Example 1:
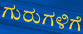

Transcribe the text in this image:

ಗುರುಗಳಿಗೆ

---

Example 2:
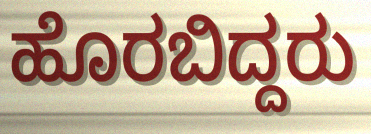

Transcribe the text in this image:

ಹೊರಬಿದ್ದರು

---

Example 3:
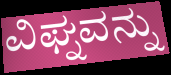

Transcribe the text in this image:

ವಿಘ್ನವನ್ನು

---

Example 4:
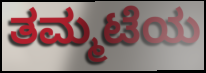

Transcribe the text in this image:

ತಮ್ಮಟೆಯ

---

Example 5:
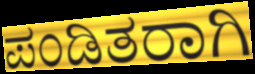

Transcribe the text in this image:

ಪಂಡಿತರಾಗಿ